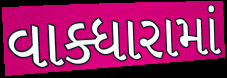
વાક્ધારામાં